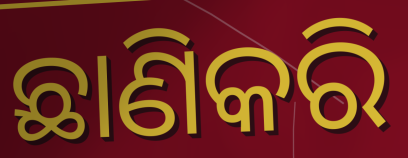
ଛାଣିକରି